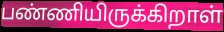
பண்ணியிருக்கிறாள்